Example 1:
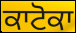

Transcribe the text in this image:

ਕਾਟੋਕਾ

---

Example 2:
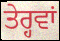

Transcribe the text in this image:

ਤੇਰ੍ਹਵਾਂ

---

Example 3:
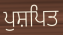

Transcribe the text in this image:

ਪੁਸ਼ਪਿਤ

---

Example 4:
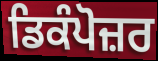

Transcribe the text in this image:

ਡਿਕੰਪੋਜ਼ਰ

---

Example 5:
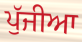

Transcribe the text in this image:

ਪੁੱਜੀਆ